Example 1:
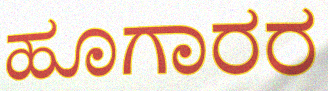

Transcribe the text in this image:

ಹೂಗಾರರ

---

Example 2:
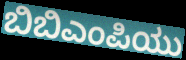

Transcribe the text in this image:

ಬಿಬಿಎಂಪಿಯು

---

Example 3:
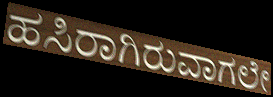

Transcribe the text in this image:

ಹಸಿರಾಗಿರುವಾಗಲೇ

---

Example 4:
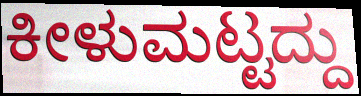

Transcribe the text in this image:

ಕೀಳುಮಟ್ಟದ್ದು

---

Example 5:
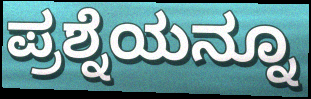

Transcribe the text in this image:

ಪ್ರಶ್ನೆಯನ್ನೂ